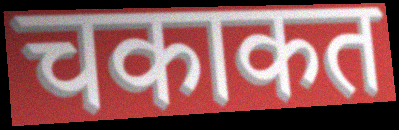
चकाकत